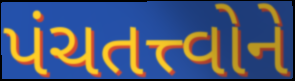
પંચતત્ત્વોને